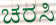
ಚರಸಿ